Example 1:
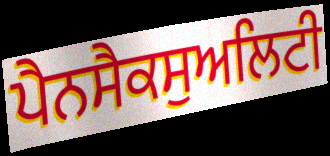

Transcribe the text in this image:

ਪੈਨਸੈਕਸੁਅਲਿਟੀ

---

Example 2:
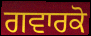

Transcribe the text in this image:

ਗਵਾਰਕੋ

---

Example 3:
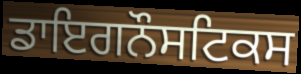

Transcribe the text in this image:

ਡਾਇਗਨੌਸਟਿਕਸ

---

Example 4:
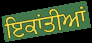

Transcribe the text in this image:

ਇਕਾਂਤੀਆਂ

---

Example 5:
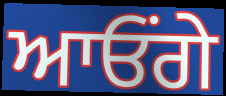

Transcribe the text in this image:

ਆਓਂਗੇ